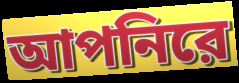
আপনিরে